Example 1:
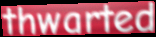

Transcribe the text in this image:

thwarted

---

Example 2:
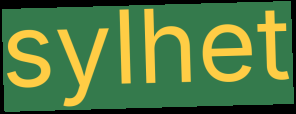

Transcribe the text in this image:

sylhet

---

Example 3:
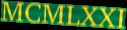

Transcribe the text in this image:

MCMLXXI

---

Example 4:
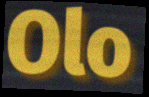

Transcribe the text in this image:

Olo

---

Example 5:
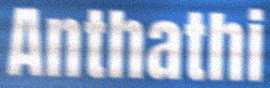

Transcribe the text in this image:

Anthathi